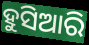
ହୁସିଆରି